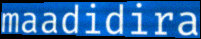
maadidira